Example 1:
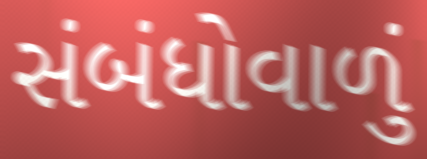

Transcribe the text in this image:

સંબંધોવાળું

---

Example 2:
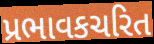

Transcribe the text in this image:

પ્રભાવકચરિત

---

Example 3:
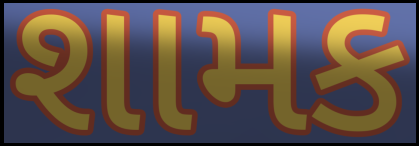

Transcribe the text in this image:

શામક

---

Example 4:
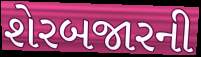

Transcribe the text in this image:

શેરબજારની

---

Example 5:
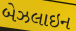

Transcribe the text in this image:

બેઝલાઇન